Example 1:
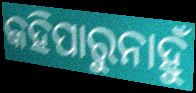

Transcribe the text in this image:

କହିପାରୁନାହୁଁ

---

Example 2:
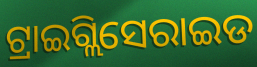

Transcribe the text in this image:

ଟ୍ରାଇଗ୍ଲିସେରାଇଡ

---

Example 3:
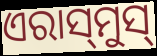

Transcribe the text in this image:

ଏରାସ୍‍ମୁସ୍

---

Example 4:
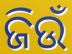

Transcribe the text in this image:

ଜିଉଁ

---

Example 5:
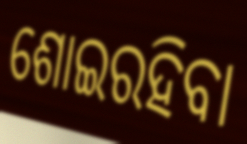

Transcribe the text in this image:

ଶୋଇରହିବା